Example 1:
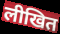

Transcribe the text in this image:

लीखित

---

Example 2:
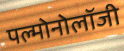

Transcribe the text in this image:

पल्मोनोलॉजी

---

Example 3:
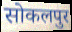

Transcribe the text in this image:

सोकलपुर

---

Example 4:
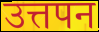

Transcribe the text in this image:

उत्तपन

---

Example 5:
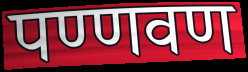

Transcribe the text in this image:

पण्णवण